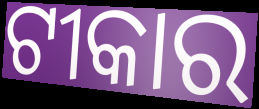
ଟୀକାର